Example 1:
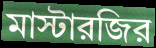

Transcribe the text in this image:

মাস্টারজির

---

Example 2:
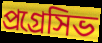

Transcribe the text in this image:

প্রগ্রেসিভ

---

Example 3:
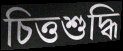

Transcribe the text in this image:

চিত্তশুদ্ধি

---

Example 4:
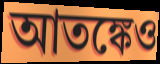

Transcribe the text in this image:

আতঙ্কেও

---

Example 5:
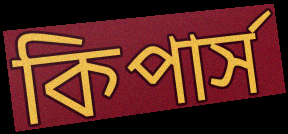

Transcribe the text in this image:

কিপার্স